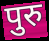
पुरु